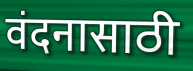
वंदनासाठी